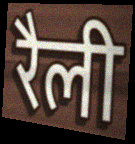
रैली